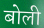
बोली